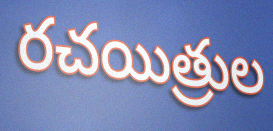
రచయిత్రుల